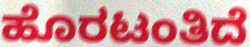
ಹೊರಟಂತಿದೆ